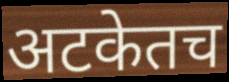
अटकेतच